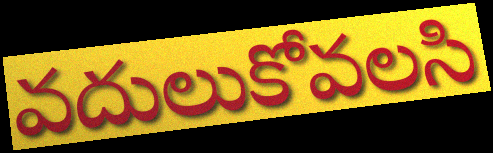
వదులుకోవలసి